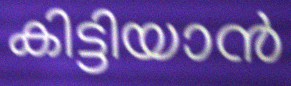
കിട്ടിയാൻ